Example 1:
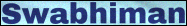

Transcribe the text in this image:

Swabhiman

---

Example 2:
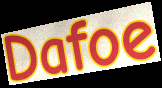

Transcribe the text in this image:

Dafoe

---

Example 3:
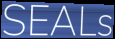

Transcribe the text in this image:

SEALs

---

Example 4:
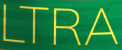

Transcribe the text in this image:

LTRA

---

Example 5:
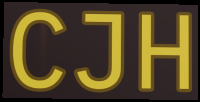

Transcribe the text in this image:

CJH